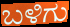
ಬಳಿಗು